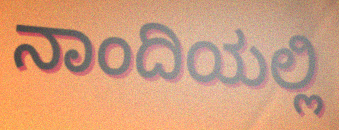
ನಾಂದಿಯಲ್ಲಿ